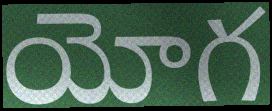
యోగ